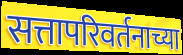
सत्तापरिवर्तनाच्या